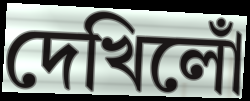
দেখিলোঁ